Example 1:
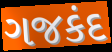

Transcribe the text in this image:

ગજકંદ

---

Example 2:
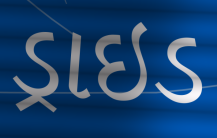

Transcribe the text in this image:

ડ્રાઇડ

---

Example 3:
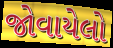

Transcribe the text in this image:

જોવાયેલો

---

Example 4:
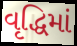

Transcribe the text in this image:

વૃદ્ધિમાં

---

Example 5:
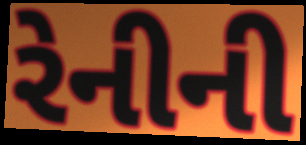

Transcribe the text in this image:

રેનીની